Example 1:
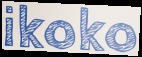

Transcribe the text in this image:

ikoko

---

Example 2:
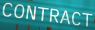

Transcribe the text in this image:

CONTRACT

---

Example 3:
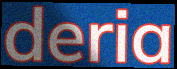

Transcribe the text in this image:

deria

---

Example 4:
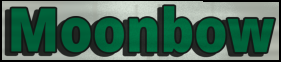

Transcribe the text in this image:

Moonbow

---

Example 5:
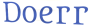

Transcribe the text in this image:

Doerr